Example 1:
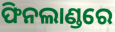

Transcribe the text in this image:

ଫିନଲାଣ୍ଡରେ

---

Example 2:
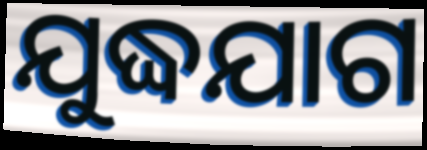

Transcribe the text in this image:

ଯୁଦ୍ଧଯାଗ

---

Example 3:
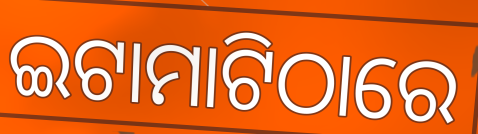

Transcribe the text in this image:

ଇଟାମାଟିଠାରେ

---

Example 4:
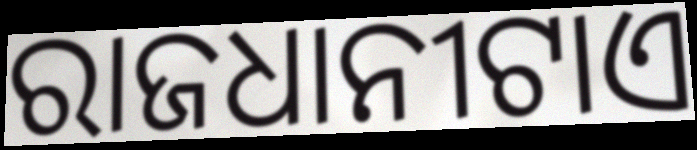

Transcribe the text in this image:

ରାଜଧାନୀଟାଏ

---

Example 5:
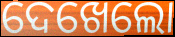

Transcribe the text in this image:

ଦେଖେଲୋ